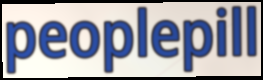
peoplepill